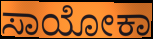
ಸಾಯೋಕಾ